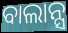
ବାଲାନ୍ସ